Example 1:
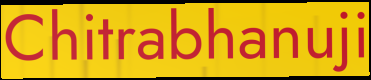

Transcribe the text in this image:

Chitrabhanuji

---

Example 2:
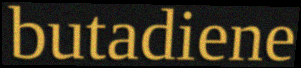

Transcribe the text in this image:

butadiene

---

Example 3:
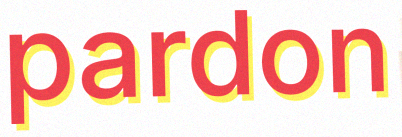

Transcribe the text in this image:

pardon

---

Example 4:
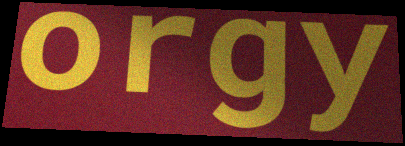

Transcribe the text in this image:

orgy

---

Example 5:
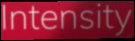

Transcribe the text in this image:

Intensity